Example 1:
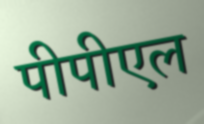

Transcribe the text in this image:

पीपीएल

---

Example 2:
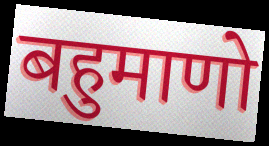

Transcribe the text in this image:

बहुमाणो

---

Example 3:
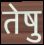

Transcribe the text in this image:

तेषु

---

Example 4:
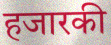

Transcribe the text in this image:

हजारकी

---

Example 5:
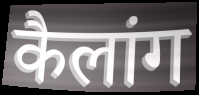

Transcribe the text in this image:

कैलांग